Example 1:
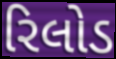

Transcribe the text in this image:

રિલોડ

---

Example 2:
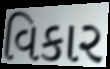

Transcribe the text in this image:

વિકાર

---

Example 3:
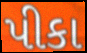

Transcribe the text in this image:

પીકા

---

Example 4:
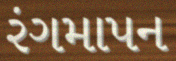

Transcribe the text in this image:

રંગમાપન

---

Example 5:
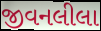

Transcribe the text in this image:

જીવનલીલા